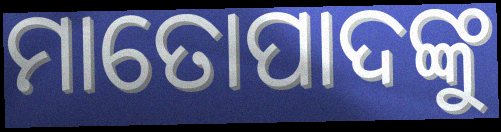
ମାତୋପାଦଙ୍କୁ